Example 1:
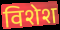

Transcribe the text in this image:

विशेश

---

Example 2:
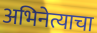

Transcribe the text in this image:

अभिनेत्याचा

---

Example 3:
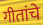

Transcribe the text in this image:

गीतांचे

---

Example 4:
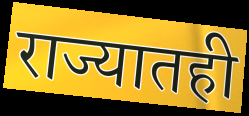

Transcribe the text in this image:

राज्यातही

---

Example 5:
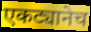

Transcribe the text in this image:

एकट्यानेच